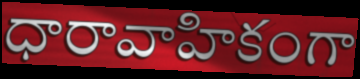
ధారావాహికంగా